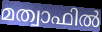
മത്വാഫിൽ